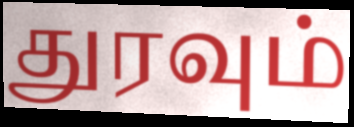
துரவும்